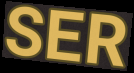
SER